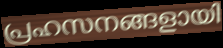
പ്രഹസനങ്ങളായി